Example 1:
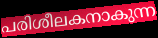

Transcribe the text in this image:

പരിശീലകനാകുന്ന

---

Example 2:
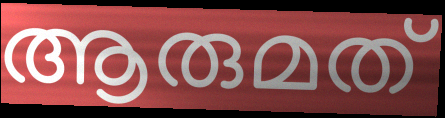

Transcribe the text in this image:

ആരുമത്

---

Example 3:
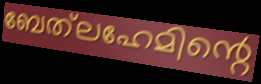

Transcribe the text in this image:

ബേത്‌ലഹേമിന്റെ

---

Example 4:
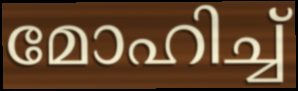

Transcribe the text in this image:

മോഹിച്ച്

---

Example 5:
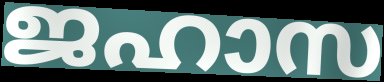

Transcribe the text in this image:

ജഹാസ